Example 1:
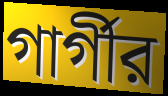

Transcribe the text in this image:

গার্গীর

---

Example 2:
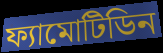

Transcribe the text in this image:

ফ্যামোটিডিন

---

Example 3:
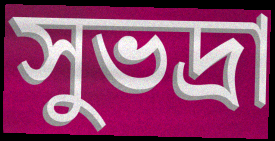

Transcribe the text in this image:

সুভদ্রা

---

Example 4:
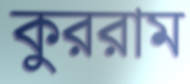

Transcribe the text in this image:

কুররাম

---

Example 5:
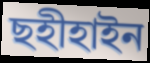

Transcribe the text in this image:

ছহীহাইন